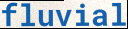
fluvial